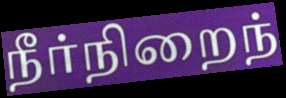
நீர்நிறைந்